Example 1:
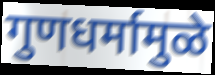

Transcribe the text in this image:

गुणधर्मामुळे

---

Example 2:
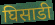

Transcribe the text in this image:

घिसाडी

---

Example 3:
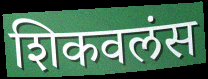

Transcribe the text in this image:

शिकवलंस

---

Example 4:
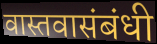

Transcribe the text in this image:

वास्तवासंबंधी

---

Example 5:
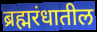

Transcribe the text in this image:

ब्रह्मरंधातील